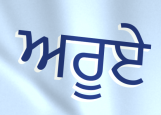
ਅਰੂਏ